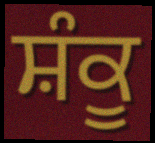
ਸ਼ੰਕੂ